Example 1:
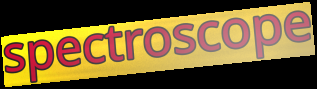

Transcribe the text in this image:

spectroscope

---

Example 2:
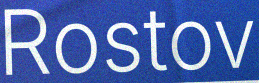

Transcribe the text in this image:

Rostov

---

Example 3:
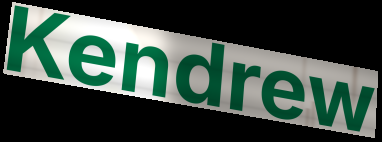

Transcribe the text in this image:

Kendrew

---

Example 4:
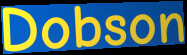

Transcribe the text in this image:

Dobson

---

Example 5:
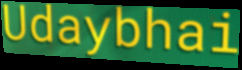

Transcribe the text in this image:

Udaybhai